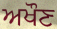
ਅਖੌਣ